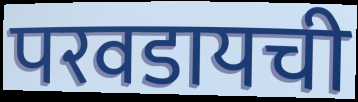
परवडायची